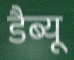
डैब्यू